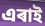
এৰাই